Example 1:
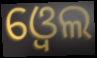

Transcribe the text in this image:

ଓ୍ବେଲ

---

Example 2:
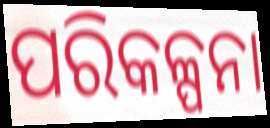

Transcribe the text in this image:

ପରିକଳ୍ପନା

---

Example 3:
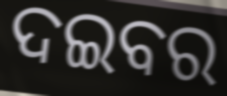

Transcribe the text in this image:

ଦଇବର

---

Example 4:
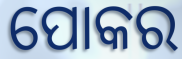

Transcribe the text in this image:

ପୋକର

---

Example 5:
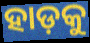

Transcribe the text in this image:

ହାଡ଼କୁ